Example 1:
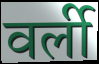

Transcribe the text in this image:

वर्ली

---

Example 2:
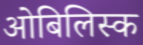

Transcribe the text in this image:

ओबिलिस्क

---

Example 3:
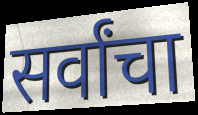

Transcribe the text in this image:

सर्वांचा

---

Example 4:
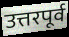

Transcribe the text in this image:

उत्तरपूर्व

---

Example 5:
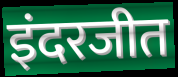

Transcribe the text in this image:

इंदरजीत